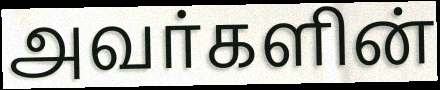
அவர்களின்